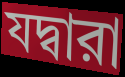
যদ্বারা